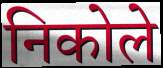
निकोले